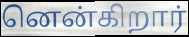
னென்கிறார்